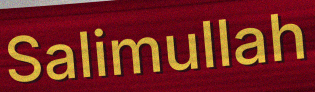
Salimullah